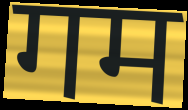
गम